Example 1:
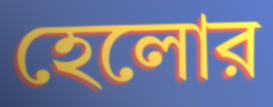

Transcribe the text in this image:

হেলোর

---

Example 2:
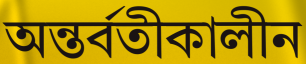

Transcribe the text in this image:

অন্তর্বতীকালীন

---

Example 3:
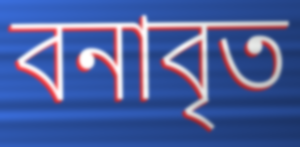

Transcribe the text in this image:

বনাবৃত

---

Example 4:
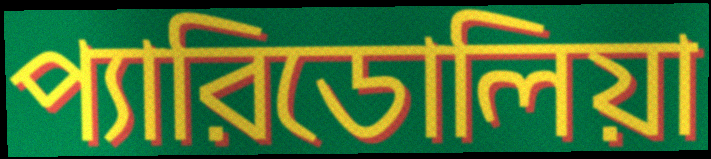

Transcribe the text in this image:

প্যারিডোলিয়া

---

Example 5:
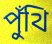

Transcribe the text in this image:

পুঁথি